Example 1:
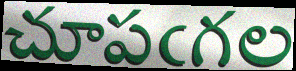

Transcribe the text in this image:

చూపఁగల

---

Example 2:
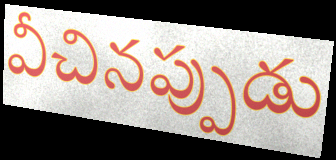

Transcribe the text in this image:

వీచినప్పుడు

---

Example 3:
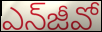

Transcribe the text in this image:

ఎన్‌జీవో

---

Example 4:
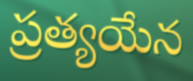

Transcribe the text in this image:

ప్రత్యయేన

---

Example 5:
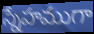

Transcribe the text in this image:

స్నేహముగా